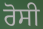
ਰੋਸੀ